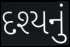
દશ્યનું